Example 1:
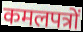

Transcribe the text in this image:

कमलपत्रों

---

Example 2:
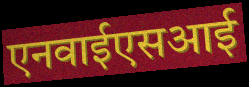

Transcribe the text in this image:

एनवाईएसआई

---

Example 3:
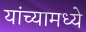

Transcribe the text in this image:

यांच्यामध्ये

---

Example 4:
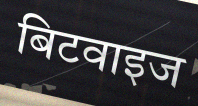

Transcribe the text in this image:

बिटवाइज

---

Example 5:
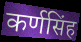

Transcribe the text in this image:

कर्णसिंह